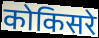
कोकिसरे